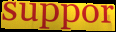
suppor